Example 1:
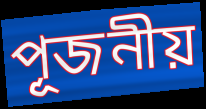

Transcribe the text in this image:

পূজনীয়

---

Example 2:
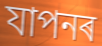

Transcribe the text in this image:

যাপনৰ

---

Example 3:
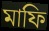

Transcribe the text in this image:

মাফি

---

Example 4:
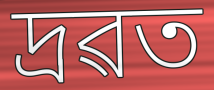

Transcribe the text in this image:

দ্ৰৱত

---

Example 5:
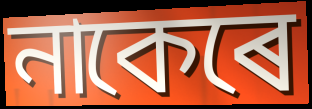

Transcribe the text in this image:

নাকেৰে